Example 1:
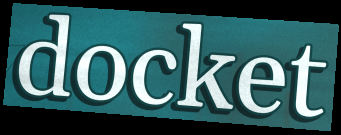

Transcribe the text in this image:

docket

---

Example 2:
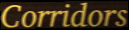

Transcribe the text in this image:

Corridors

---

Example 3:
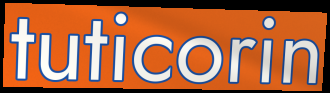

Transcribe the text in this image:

tuticorin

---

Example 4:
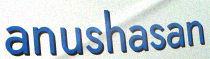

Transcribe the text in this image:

anushasan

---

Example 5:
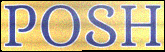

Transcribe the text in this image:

POSH